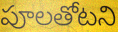
పూలతోటని